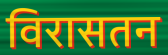
विरासतन